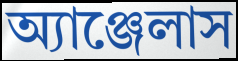
অ্যাঞ্জেলাস